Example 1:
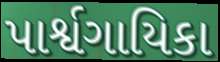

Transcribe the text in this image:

પાર્શ્વગાયિકા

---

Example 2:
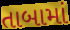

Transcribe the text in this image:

તાબામાં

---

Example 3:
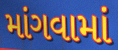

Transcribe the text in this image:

માંગવામાં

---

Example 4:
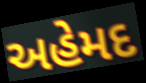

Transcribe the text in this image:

અહેમદ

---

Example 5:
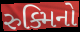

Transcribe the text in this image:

રુક્મિનો